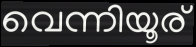
വെന്നിയൂര്